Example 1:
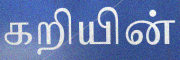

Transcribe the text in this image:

கறியின்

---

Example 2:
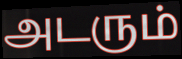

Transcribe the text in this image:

அடரும்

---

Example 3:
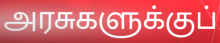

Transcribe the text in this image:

அரசுகளுக்குப்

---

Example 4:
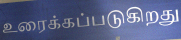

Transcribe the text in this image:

உரைக்கப்படுகிறது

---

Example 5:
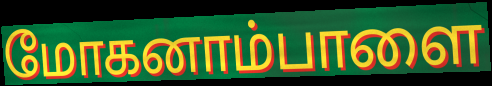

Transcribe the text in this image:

மோகனாம்பாளை